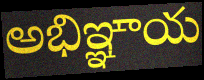
అభిఞ్ఞాయ